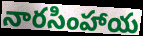
నారసింహాయ